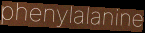
phenylalanine